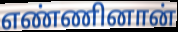
எண்ணினான்